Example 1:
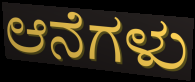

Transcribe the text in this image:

ಆನೆಗಳು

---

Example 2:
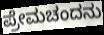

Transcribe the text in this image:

ಪ್ರೇಮಚಂದನು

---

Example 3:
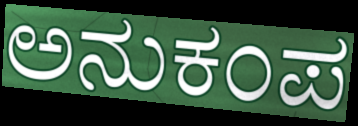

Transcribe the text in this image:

ಅನುಕಂಪ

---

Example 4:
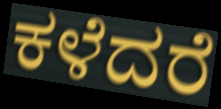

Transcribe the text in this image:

ಕಳೆದರೆ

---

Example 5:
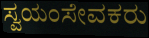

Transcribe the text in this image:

ಸ್ವಯಂಸೇವಕರು